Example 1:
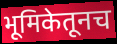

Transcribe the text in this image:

भूमिकेतूनच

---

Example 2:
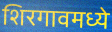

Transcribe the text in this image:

शिरगावमध्ये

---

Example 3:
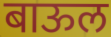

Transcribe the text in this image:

बाऊल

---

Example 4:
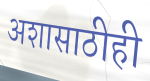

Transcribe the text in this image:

अशासाठीही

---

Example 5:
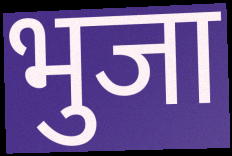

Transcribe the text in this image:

भुजा